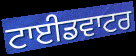
ਟਾਈਡਵਾਟਰ